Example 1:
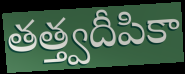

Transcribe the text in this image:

తత్త్వదీపికా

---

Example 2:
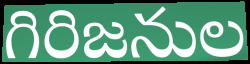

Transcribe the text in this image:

గిరిజనుల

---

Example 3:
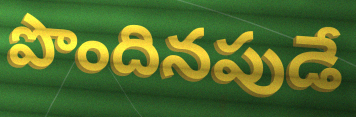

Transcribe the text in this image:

పొందినపుడే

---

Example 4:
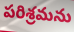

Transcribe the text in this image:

పరిశ్రమను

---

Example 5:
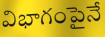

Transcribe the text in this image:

విభాగంపైనే